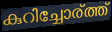
കുറിച്ചോര്ത്ത്